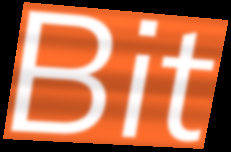
Bit